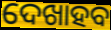
ଦେଖାହବ